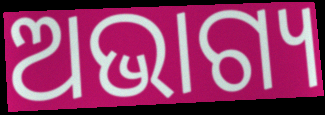
ଅଭାଗ୍ୟ